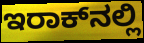
ಇರಾಕ್‍ನಲ್ಲಿ